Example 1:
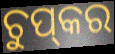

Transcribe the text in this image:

ଚୁପ୍‌କର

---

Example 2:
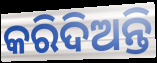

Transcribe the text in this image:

କରିଦିଅନ୍ତି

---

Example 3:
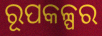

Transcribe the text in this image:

ରୂପକଳ୍ପର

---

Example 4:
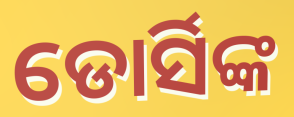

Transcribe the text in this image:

ଡୋର୍ସିଙ୍କ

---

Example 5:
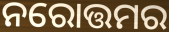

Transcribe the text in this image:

ନରୋତ୍ତମର